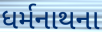
ધર્મનાથના